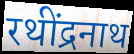
रथींद्रनाथ